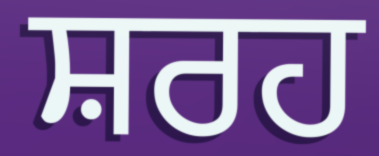
ਸ਼ਰਹ